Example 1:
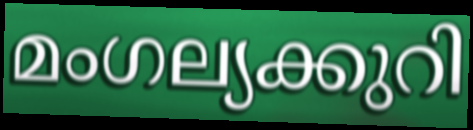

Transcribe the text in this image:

മംഗല്യക്കുറി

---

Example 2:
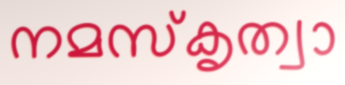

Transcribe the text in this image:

നമസ്കൃത്വാ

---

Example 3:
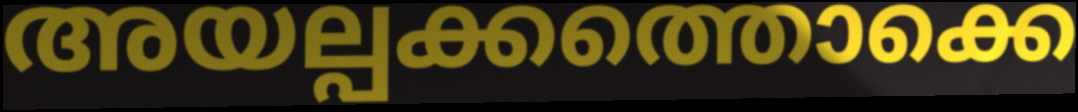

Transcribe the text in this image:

അയല്പക്കത്തൊക്കെ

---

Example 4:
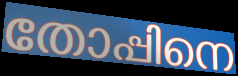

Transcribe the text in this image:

തോപ്പിനെ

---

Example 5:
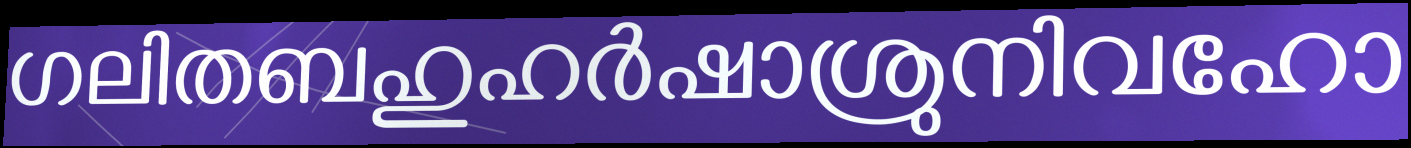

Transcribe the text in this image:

ഗലിതബഹുഹർഷാശ്രുനിവഹോ